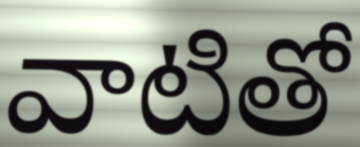
వాటితో